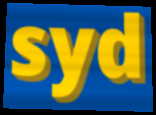
syd